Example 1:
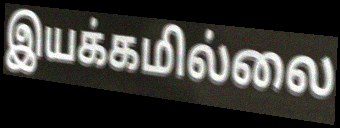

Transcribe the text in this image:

இயக்கமில்லை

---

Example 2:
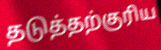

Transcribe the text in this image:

தடுத்தற்குரிய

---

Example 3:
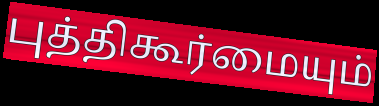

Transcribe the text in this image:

புத்திகூர்மையும்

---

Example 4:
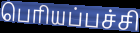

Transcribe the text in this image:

பெரியப்பச்சி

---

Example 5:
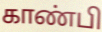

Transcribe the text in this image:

காண்பி